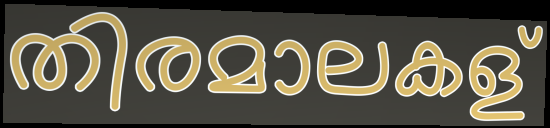
തിരമാലകള്